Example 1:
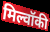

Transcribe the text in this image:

मिल्वॉकी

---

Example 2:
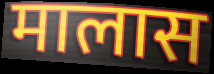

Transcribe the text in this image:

मालास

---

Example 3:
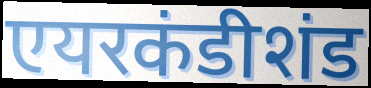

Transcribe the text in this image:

एयरकंडीशंड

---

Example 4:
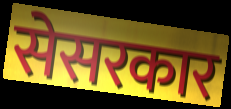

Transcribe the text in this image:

सेसरकार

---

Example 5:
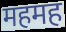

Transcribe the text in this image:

महमह